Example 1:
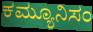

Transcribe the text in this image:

ಕಮ್ಯೂನಿಸಂ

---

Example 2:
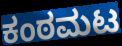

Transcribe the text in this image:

ಕಂಠಮಟ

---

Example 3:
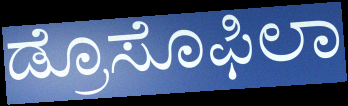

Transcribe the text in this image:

ಡ್ರೊಸೊಫಿಲಾ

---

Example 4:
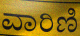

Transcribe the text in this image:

ವಾರಿಣಿ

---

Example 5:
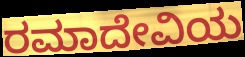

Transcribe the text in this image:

ರಮಾದೇವಿಯ